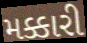
મક્કારી